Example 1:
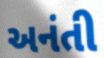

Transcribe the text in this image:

અનંતી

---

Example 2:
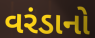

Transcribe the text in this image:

વરંડાનો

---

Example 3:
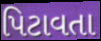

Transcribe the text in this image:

પિટાવતા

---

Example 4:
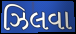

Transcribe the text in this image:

ઝિલવા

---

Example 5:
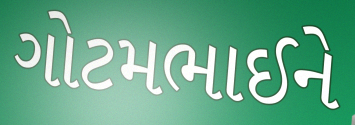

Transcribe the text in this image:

ગોટમભાઈને